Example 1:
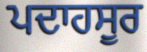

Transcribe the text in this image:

ਪਦਾਹਸੂਰ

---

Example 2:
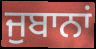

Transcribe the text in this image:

ਜੁਬਾਨਾਂ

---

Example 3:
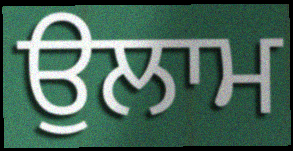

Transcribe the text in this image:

ਉਲਾਮ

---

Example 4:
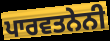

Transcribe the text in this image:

ਪਾਰਵਤਨੇਨੀ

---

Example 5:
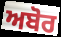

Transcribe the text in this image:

ਅਬੋਰ